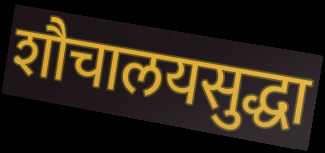
शौचालयसुद्धा